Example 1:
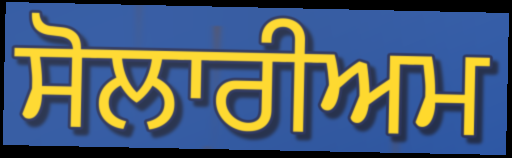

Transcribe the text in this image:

ਸੋਲਾਰੀਅਮ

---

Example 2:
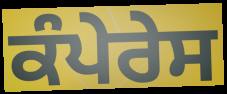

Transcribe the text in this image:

ਕੰਪੇਰੇਸ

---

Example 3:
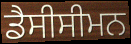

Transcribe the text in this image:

ਡੈਸੀਸੀਮਨ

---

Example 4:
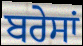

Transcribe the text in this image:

ਬਰੇਸਾਂ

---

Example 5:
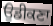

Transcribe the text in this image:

ਉਡੀਕਣਾ